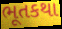
ભૂતકથા